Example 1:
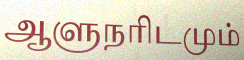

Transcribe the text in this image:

ஆளுநரிடமும்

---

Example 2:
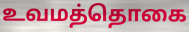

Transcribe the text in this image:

உவமத்தொகை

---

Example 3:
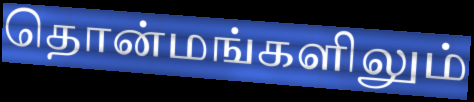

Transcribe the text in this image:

தொன்மங்களிலும்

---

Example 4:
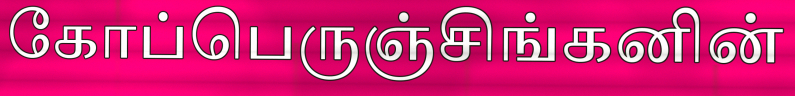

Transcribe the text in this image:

கோப்பெருஞ்சிங்கனின்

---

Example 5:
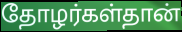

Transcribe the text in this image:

தோழர்கள்தான்